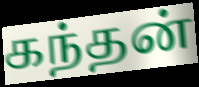
கந்தன்